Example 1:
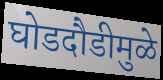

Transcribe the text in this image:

घोडदौडीमुळे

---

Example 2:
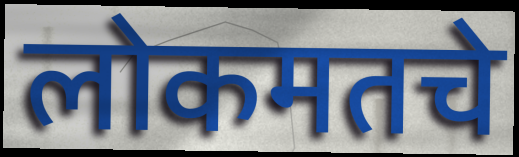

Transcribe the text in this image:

लोकमतचे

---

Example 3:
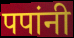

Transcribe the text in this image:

पपांनी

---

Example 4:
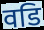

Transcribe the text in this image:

वडि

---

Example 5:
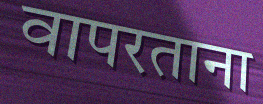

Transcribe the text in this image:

वापरताना